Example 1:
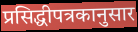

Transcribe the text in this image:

प्रसिद्धीपत्रकानुसार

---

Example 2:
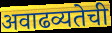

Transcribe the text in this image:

अवाढव्यतेची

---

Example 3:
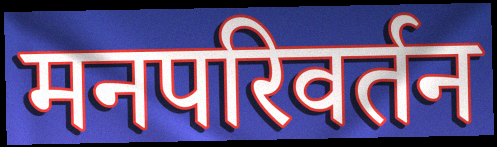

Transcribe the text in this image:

मनपरिवर्तन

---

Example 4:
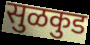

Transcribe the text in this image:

सुळकुड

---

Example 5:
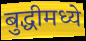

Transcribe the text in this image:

बुद्धीमध्ये